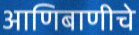
आणिबाणीचे